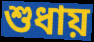
শুধায়